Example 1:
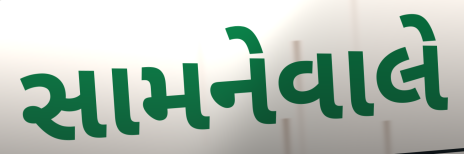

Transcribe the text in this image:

સામનેવાલે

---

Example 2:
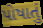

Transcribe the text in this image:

પોષાતું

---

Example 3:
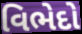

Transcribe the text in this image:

વિભેદો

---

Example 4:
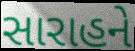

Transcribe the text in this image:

સારાહને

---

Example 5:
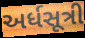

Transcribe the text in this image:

અર્ધસૂત્રી